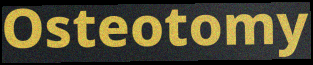
Osteotomy